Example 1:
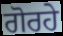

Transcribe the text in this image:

ਗੋਰਹੇ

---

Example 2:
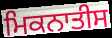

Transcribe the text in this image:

ਮਿਕਨਾਤੀਸ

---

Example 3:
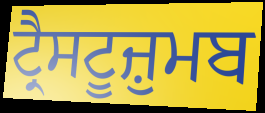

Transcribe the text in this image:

ਟ੍ਰੈਸਟੂਜ਼ੁਮਬ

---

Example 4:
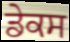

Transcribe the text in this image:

ਡੇਕਸ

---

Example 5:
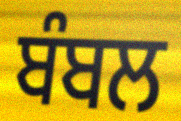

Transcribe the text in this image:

ਬੰਬਲ